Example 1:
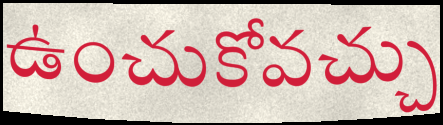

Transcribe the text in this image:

ఉంచుకోవచ్చు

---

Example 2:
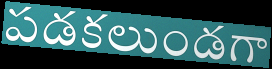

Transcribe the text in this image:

పడకలుండగా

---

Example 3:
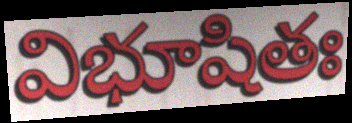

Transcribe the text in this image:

విభూషితః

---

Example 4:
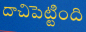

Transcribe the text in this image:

దాచిపెట్టింది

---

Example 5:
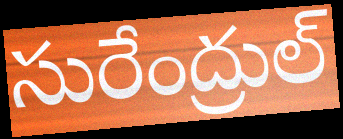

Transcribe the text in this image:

సురేంద్రుల్